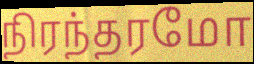
நிரந்தரமோ